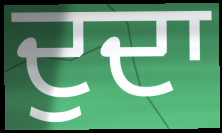
ਦੁਦਾ